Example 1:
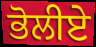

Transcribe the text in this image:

ਭੋਲੀਏ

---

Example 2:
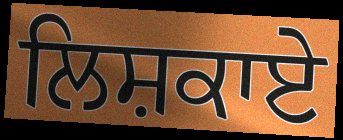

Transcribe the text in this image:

ਲਿਸ਼ਕਾਏ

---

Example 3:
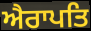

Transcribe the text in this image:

ਐਰਾਪਤਿ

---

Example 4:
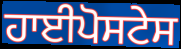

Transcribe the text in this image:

ਹਾਈਪੋਸਟੇਸ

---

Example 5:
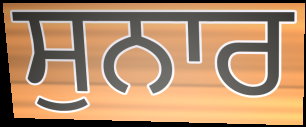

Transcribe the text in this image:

ਸੁਨਾਰ